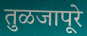
तुळजापूरे